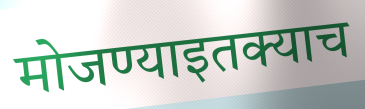
मोजण्याइतक्याच